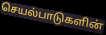
செயல்பாடுகளின்